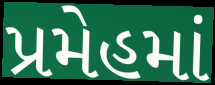
પ્રમેહમાં